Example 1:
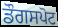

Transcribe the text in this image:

ਡੌਗਸਪੋਟ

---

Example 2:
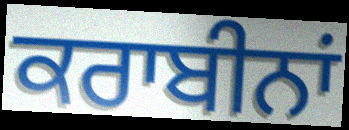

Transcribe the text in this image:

ਕਰਾਬੀਨਾਂ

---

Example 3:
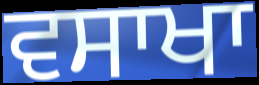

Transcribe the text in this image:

ਵਸਾਖਾ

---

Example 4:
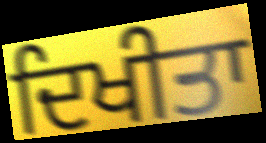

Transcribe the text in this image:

ਦਿਖੀਤਾ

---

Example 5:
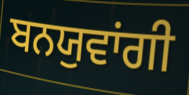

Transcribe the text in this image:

ਬਨਯੁਵਾਂਗੀ